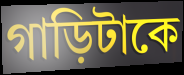
গাড়িটাকে